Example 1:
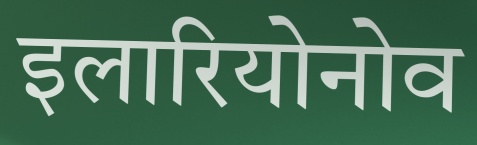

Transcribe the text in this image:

इलारियोनोव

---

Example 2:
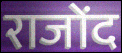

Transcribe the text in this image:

राजोंद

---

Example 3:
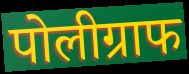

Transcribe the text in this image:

पोलीग्राफ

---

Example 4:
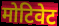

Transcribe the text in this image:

मोटिवेट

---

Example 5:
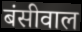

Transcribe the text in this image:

बंसीवाल